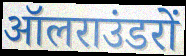
ऑलराउंडरों